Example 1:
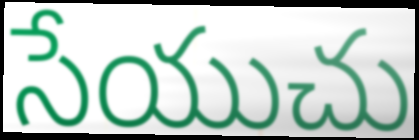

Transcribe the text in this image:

సేయుచు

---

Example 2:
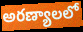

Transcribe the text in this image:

అరణ్యాలలో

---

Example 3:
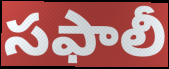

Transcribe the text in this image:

సఫాలీ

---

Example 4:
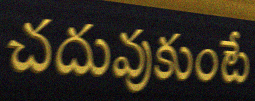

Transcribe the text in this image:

చదువుకుంటే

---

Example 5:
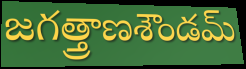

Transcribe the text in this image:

జగత్త్రాణశౌండమ్